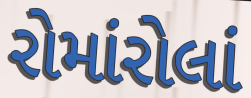
રોમાંરોલાં